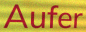
Aufer